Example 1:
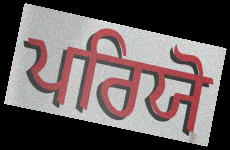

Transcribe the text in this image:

ਪਰਿਯੋ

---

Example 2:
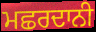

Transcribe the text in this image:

ਮਛਰਦਾਨੀ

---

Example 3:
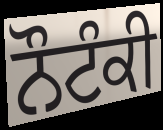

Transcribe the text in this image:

ਨੌਟੰਕੀ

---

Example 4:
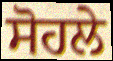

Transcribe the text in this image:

ਸੋਹਲੇ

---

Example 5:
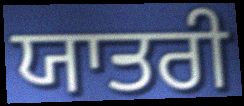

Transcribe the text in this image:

ਯਾਤਰੀ